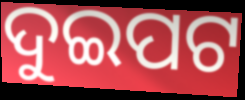
ଦୁଇପଟ